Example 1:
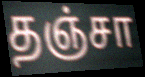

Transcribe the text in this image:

தஞ்சா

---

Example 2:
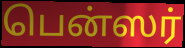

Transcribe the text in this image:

பென்ஸர்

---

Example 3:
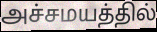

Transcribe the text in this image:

அச்சமயத்தில்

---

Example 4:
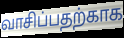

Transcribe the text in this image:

வாசிப்பதற்காக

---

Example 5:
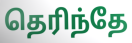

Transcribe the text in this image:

தெரிந்தே